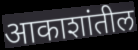
आकाशांतील